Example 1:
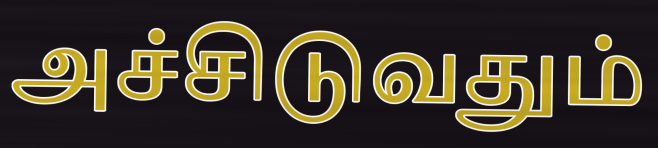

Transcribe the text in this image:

அச்சிடுவதும்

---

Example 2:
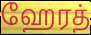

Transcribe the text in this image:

ஹேரத்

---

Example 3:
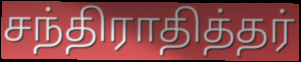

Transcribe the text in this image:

சந்திராதித்தர்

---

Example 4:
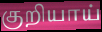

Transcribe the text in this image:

குறியாய்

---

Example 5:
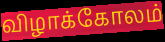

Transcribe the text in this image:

விழாக்கோலம்